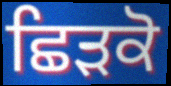
ਛਿੜਕੋ